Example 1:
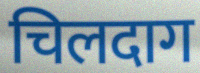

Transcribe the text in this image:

चिलदाग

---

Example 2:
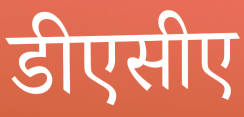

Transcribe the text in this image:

डीएसीए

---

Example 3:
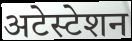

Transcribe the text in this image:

अटेस्टेशन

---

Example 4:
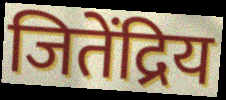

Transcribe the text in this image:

जितेंद्रिय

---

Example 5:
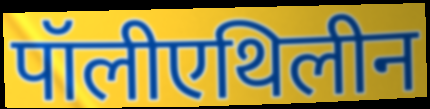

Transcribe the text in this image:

पॉलीएथिलीन